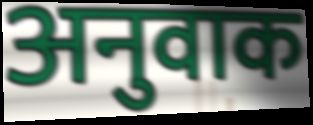
अनुवाक